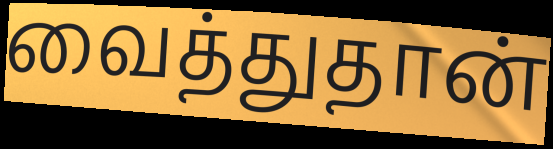
வைத்துதான்